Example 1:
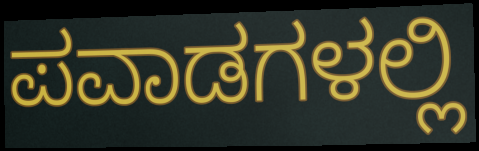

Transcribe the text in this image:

ಪವಾಡಗಳಲ್ಲಿ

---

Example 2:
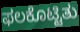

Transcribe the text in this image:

ಫಲಕೊಟ್ಟಿತು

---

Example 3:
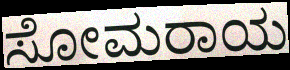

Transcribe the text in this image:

ಸೋಮರಾಯ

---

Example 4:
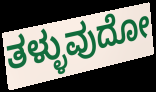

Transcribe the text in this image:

ತಳ್ಳುವುದೋ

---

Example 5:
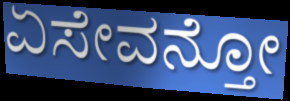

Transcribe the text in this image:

ಏಸೇವನ್ತೋ